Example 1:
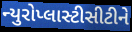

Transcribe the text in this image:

ન્યુરોપ્લાસ્ટીસીટીને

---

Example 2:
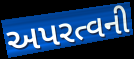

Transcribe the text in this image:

અપરત્વની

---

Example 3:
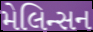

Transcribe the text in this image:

મેલિન્સન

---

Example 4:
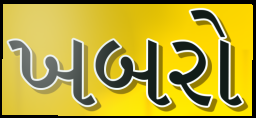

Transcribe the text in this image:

ખબરો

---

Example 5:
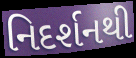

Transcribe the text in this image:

નિદર્શનથી